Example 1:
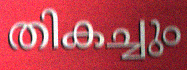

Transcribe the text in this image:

തികച്ചും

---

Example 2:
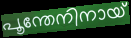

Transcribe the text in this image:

പൂന്തേനിനായ്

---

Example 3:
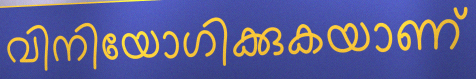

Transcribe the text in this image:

വിനിയോഗിക്കുകയാണ്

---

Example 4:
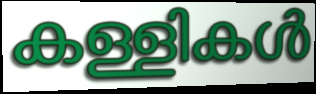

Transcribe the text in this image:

കള്ളികൾ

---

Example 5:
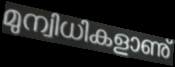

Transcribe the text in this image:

മുന്വിധികളാണു്